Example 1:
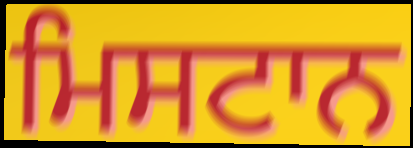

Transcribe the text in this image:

ਮਿਸਟਾਨ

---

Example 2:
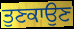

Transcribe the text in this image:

ਤੁਣਕਾਉਣ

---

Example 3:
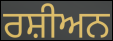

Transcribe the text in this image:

ਰਸ਼ੀਅਨ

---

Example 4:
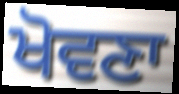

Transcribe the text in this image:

ਖੋਵਣਾ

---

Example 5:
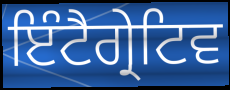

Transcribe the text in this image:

ਇੰਟੈਗ੍ਰੇਟਿਵ